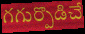
గగుర్పొడిచే